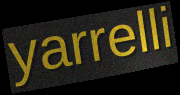
yarrelli